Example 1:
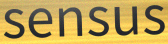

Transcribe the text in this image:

sensus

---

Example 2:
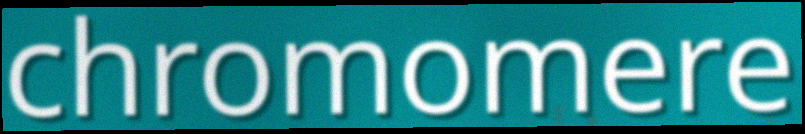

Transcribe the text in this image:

chromomere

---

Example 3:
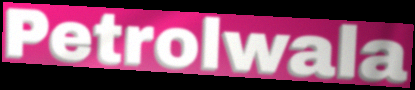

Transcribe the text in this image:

Petrolwala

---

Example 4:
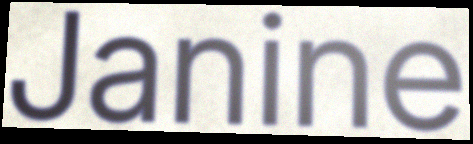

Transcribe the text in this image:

Janine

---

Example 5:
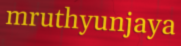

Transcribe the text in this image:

mruthyunjaya